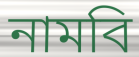
নামবি